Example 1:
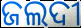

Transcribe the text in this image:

ଜଲଦୀ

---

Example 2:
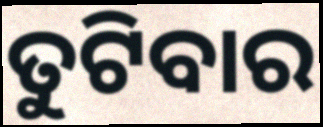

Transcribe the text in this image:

ତୁଟିବାର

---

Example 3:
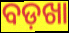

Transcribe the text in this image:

ବଡ଼ଖା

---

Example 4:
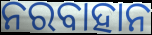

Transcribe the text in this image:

ନରବାହାନ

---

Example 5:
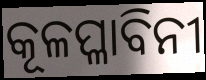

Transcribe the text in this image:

କୂଳପ୍ଳାବିନୀ